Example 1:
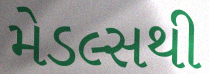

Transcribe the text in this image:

મેડલ્સથી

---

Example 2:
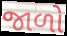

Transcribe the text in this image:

જાળો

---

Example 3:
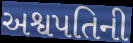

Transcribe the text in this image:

અશ્વપતિની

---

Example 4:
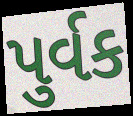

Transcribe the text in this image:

પુર્વક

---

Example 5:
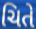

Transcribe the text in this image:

ચિતે